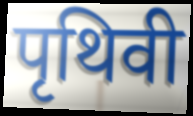
पृथिवी